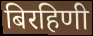
बिरहिणी